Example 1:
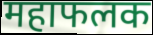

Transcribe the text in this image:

महाफलक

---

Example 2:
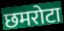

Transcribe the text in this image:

छमरोटा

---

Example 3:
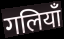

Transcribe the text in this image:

गलियाँ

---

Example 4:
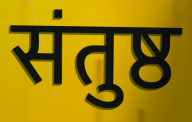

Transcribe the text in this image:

संतुष्ठ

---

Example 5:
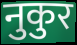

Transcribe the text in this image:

नुकुर